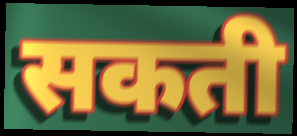
सकती